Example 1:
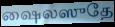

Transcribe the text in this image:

ஷைலஸுதே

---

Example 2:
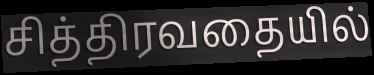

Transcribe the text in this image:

சித்திரவதையில்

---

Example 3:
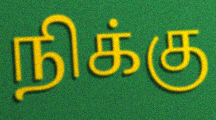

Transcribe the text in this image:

நிக்கு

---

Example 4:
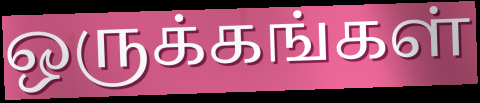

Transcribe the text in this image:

ஒருக்கங்கள்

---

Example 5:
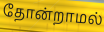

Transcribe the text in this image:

தோன்றாமல்